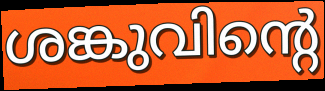
ശങ്കുവിന്റെ